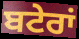
ਬਟੇਰਾਂ